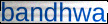
bandhwa